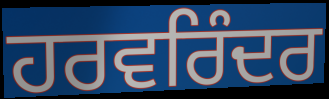
ਹਰਵਰਿੰਦਰ